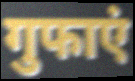
गुफाएं